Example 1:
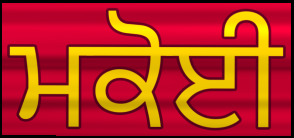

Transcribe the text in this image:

ਮਕੋਈ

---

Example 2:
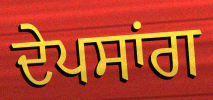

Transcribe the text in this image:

ਦੇਪਸਾਂਗ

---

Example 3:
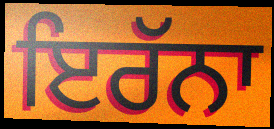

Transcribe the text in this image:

ਇਰੱਨਾ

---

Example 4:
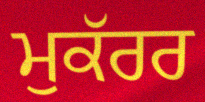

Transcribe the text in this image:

ਮੁਕੱਰਰ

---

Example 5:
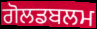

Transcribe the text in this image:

ਗੋਲਡਬਲਮ